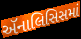
ઍનાલિસિસમાં